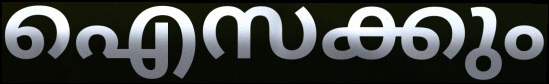
ഐസക്കും